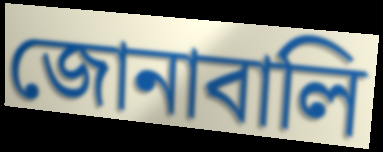
জোনাবালি